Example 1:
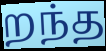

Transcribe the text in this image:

றந்த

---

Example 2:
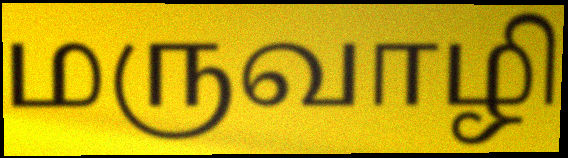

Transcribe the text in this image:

மருவாழி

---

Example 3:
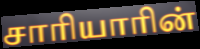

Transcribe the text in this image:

சாரியாரின்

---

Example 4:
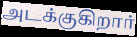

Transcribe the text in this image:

அடக்குகிறார்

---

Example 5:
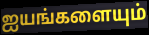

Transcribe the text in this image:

ஐயங்களையும்